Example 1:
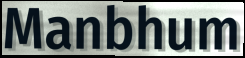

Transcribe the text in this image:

Manbhum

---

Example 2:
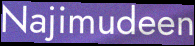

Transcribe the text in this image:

Najimudeen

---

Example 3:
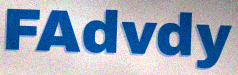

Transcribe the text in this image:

FAdvdy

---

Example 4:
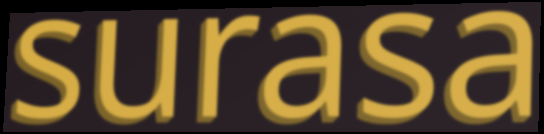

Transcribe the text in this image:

surasa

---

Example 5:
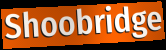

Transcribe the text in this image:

Shoobridge